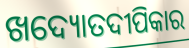
ଖଦ୍ୟୋତଦୀପିକାର